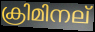
ക്രിമിനല്